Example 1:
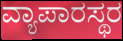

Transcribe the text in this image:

ವ್ಯಾಪಾರಸ್ಥರ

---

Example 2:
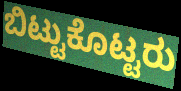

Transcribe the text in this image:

ಬಿಟ್ಟುಕೊಟ್ಟರು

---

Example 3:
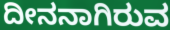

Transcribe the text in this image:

ದೀನನಾಗಿರುವ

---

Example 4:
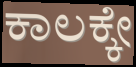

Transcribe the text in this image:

ಕಾಲಕ್ಕೇ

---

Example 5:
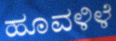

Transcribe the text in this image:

ಹೂವಳಿಳೆ